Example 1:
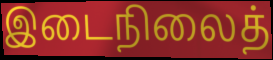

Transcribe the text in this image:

இடைநிலைத்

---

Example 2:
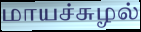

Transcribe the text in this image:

மாயச்சுழல்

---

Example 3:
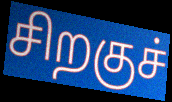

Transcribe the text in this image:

சிறகுச்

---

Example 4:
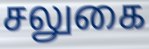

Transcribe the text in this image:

சலுகை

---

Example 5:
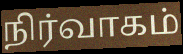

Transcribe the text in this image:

நிர்வாகம்